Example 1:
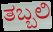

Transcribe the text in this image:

ತಬ್ಬಲಿ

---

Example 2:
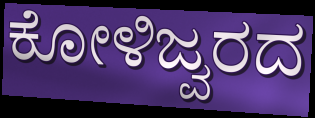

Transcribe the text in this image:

ಕೋಳಿಜ್ವರದ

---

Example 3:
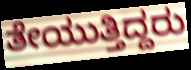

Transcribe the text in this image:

ತೇಯುತ್ತಿದ್ದರು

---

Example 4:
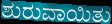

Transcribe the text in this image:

ಶುರುವಾಯಿತು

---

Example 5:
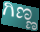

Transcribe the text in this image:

ಗಿಣ್ಣ